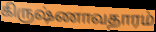
கிருஷ்ணாவதாரம்